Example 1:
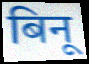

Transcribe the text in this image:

बिनू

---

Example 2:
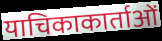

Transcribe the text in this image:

याचिकाकार्ताओं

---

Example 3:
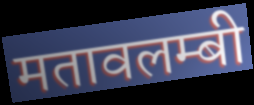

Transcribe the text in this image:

मतावलम्बी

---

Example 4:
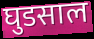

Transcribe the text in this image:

घुडसाल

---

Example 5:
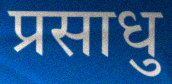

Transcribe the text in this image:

प्रसाधु